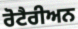
ਰੋਟੈਰੀਅਨ